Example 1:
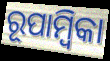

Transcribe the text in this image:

ରୂପାମ୍ବିକା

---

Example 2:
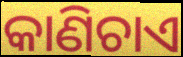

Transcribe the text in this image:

କାଣିଚାଏ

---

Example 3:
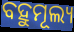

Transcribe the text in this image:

ବହୁମୂଲ୍ୟ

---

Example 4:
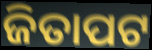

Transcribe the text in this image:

ଜିତାପଟ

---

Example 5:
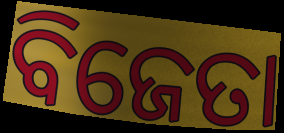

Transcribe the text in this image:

ବିଜେତା